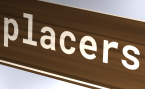
placers